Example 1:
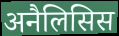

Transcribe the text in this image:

अनैलिसिस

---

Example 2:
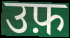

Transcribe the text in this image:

उफ़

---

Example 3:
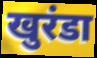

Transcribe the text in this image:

खुरंडा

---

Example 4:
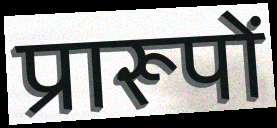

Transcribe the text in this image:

प्रारूपों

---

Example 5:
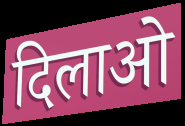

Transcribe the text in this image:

दिलाओ